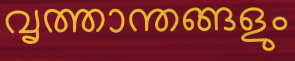
വൃത്താന്തങ്ങളും